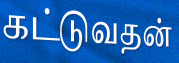
கட்டுவதன்